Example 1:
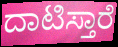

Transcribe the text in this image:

ದಾಟಿಸ್ತಾರೆ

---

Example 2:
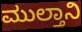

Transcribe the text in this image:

ಮುಲ್ತಾನಿ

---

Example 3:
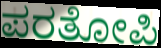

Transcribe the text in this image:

ಪರತೋಪಿ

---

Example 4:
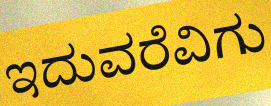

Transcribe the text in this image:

ಇದುವರೆವಿಗು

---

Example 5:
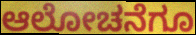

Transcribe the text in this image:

ಆಲೋಚನೆಗೂ